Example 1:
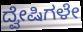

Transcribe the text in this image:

ದ್ವೇಷಿಗಳೇ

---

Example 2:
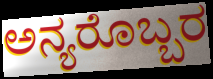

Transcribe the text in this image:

ಅನ್ಯರೊಬ್ಬರ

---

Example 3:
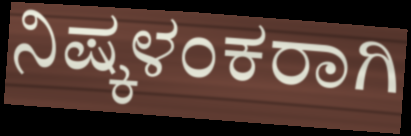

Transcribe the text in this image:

ನಿಷ್ಕಳಂಕರಾಗಿ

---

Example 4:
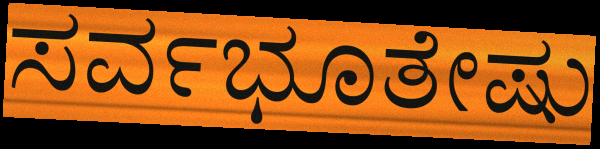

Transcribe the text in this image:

ಸರ್ವಭೂತೇಷು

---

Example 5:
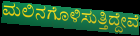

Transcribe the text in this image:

ಮಲಿನಗೊಳಿಸುತ್ತಿದ್ದೇವೆ